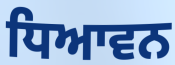
ਧਿਆਵਨ